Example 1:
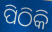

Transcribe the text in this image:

ପିଠିକି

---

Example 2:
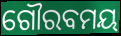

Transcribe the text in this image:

ଗୌରବମୟ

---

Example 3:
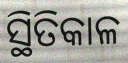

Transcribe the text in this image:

ସ୍ଥିତିକାଳ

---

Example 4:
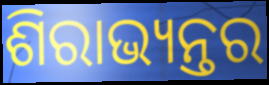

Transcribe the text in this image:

ଶିରାଭ୍ୟନ୍ତର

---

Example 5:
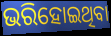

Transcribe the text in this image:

ଭରିହୋଇଥିବା